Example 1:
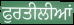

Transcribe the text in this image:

ਫੁਰਤੀਲੀਆਂ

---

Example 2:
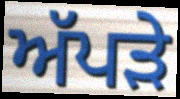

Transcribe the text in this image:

ਅੱਪੜੇ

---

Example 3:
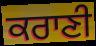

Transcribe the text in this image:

ਕਰਾਣੀ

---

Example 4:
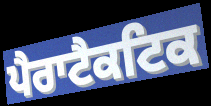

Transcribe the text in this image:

ਪੈਰਾਟੈਕਟਿਕ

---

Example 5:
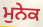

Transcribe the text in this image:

ਮੁਨੇਕ